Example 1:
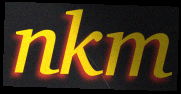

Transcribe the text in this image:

nkm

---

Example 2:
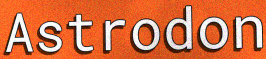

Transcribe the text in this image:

Astrodon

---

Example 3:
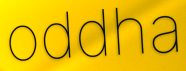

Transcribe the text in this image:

oddha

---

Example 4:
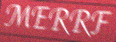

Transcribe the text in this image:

MERRF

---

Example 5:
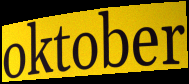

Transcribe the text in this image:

oktober